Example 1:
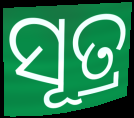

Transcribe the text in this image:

ସୂତ୍ର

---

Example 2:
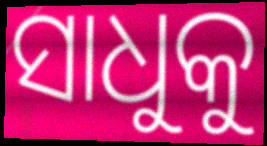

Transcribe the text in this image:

ସାଧୁକୁ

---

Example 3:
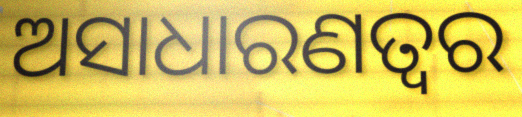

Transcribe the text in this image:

ଅସାଧାରଣତ୍ୱର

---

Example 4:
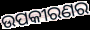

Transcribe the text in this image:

ଉପକୀରଣର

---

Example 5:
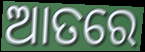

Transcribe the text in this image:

ଆତରେ